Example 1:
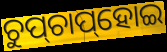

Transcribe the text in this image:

ଚୁପ୍‌ଚାପ୍‌ହୋଇ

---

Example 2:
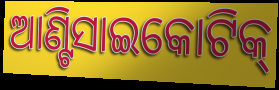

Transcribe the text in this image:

ଆଣ୍ଟିସାଇକୋଟିକ୍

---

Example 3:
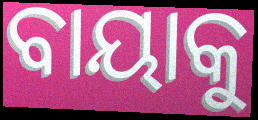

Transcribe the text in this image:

ବାୟାକୁ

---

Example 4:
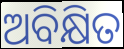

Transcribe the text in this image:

ଅବିକ୍ଷିତ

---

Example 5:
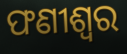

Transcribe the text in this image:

ଫଣୀଶ୍ୱର